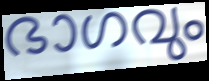
ഭാഗവും